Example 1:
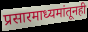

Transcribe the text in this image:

प्रसारमाध्यमांतूनही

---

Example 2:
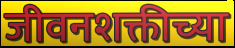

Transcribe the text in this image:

जीवनशक्तीच्या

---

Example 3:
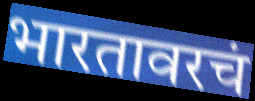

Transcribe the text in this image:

भारतावरचं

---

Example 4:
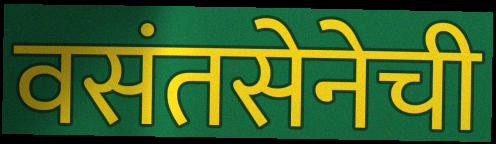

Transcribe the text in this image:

वसंतसेनेची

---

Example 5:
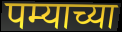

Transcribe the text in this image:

पम्याच्या